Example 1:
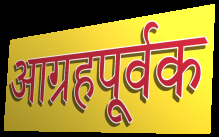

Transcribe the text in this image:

आग्रहपूर्वक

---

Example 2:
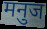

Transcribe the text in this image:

मनुज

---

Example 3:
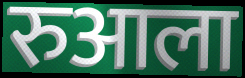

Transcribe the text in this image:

रुआला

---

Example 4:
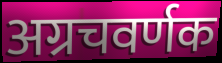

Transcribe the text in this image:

अग्रचवर्णक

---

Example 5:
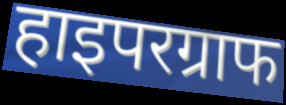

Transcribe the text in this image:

हाइपरग्राफ